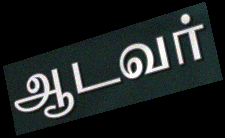
ஆடவர்